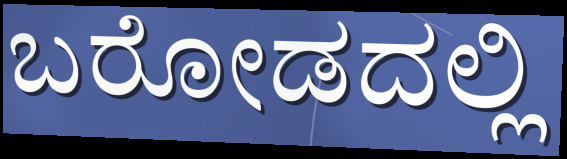
ಬರೋಡದಲ್ಲಿ